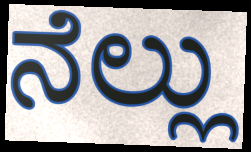
ನೆಲ್ಲು